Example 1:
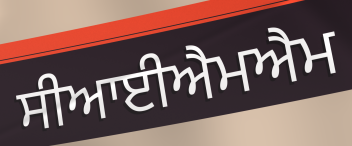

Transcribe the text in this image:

ਸੀਆਈਐਮਐਮ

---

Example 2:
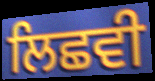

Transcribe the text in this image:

ਲਿਛਵੀ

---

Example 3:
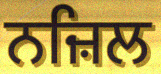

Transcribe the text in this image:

ਨਜ਼ਿਲ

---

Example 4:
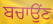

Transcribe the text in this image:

ਬਚਾਉਂਣ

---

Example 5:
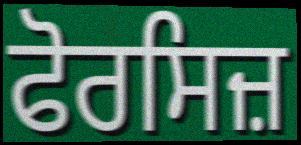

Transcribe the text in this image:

ਫੋਰਸਿਜ਼